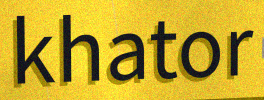
khator